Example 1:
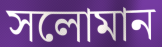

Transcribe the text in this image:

সলোমান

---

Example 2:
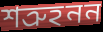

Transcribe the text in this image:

শত্রুহনন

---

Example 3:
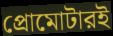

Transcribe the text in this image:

প্রোমোটারই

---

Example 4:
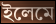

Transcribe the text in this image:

ইলেমে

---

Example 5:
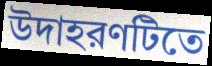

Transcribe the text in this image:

উদাহরণটিতে